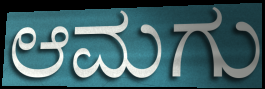
ಆಮಗು